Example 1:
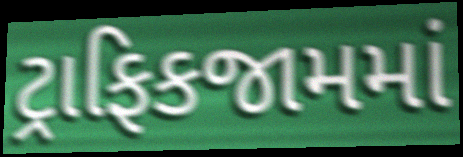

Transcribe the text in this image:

ટ્રાફિકજામમાં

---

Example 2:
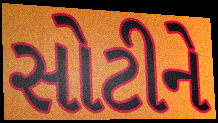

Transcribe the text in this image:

સોટીને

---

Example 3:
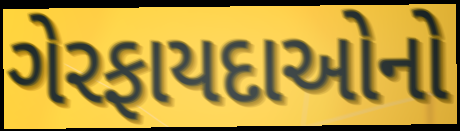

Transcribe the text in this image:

ગેરફાયદાઓનો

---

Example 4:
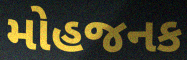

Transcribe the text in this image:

મોહજનક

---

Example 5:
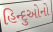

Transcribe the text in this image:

હિન્દુઓનો